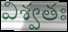
విశ్వతః